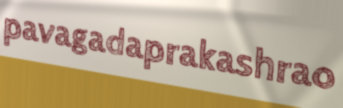
pavagadaprakashrao